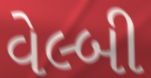
વેલ્બી